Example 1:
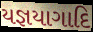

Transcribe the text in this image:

યજ્ઞયાગાદિ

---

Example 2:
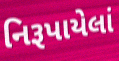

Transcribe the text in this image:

નિરૂપાયેલાં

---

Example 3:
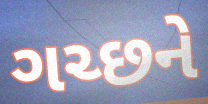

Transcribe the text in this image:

ગચ્છને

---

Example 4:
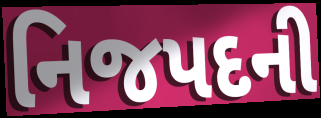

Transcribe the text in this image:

નિજપદની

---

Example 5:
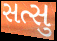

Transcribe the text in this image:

સત્સુ